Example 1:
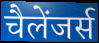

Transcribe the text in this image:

चैलेंजर्स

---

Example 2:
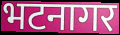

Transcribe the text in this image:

भटनागर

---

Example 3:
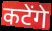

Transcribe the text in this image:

कटेंगे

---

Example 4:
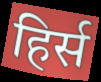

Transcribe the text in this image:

हिर्स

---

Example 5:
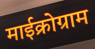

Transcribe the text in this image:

माईक्रोग्राम